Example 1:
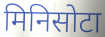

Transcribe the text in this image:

मिनिसोटा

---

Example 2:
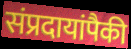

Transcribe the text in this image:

संप्रदायांपैकी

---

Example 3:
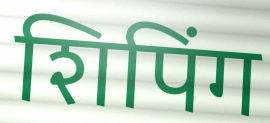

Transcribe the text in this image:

शिपिंग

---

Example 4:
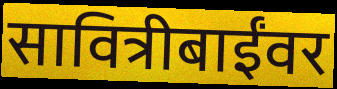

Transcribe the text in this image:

सावित्रीबाईंवर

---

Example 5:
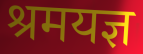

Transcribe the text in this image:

श्रमयज्ञ